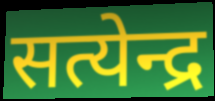
सत्येन्द्र